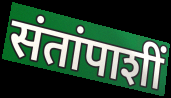
संतांपाशीं